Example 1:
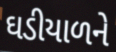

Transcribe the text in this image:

ઘડીયાળને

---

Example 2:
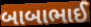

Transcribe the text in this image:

બાબાભાઈ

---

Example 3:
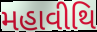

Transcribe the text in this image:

મહાવીથિ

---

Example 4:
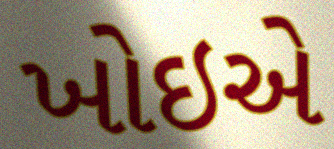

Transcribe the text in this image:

ખોઇએ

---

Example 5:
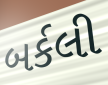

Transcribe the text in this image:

બર્કલી